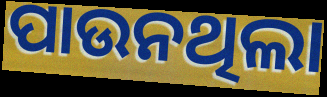
ପାଉନଥିଲା